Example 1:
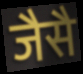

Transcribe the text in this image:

जैसै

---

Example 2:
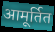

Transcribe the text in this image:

आमूर्तित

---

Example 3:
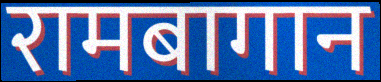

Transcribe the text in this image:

रामबागान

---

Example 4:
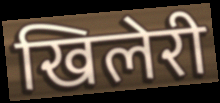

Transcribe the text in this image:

खिलेरी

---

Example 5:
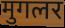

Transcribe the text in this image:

मुगलर